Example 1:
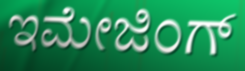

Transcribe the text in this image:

ಇಮೇಜಿಂಗ್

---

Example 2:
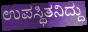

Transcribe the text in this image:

ಉಪಸ್ಥಿತನಿದ್ದು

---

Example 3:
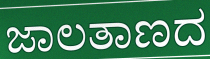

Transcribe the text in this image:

ಜಾಲತಾಣದ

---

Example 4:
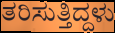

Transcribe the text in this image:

ತರಿಸುತ್ತಿದ್ದಳು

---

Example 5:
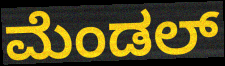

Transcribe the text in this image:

ಮೆಂಡಲ್